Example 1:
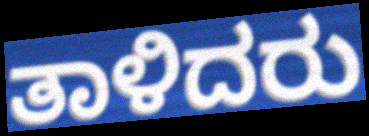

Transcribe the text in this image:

ತಾಳಿದರು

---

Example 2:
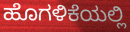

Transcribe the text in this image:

ಹೊಗಳಿಕೆಯಲ್ಲಿ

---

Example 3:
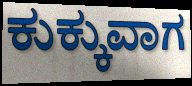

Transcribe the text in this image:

ಕುಕ್ಕುವಾಗ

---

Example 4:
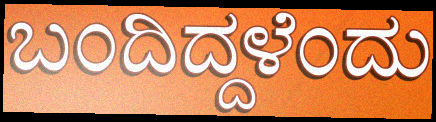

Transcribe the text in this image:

ಬಂದಿದ್ದಳೆಂದು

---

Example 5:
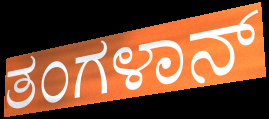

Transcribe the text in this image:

ತಂಗಳಾನ್